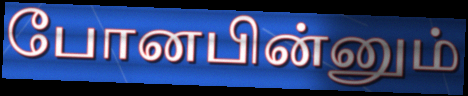
போனபின்னும்